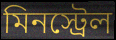
মিনস্ট্রেল